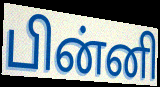
பின்னி